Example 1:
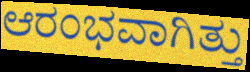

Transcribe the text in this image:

ಆರಂಭವಾಗಿತ್ತು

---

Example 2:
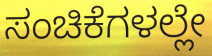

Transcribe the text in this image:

ಸಂಚಿಕೆಗಳಲ್ಲೇ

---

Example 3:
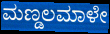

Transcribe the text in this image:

ಮಣ್ಡಲಮಾಳೇ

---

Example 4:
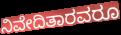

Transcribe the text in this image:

ನಿವೇದಿತಾರವರೂ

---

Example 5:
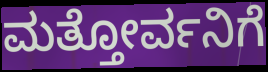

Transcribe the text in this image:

ಮತ್ತೋರ್ವನಿಗೆ